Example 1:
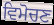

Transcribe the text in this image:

ਵਿਮੋਚਣ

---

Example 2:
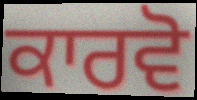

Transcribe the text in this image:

ਕਾਰਵੋ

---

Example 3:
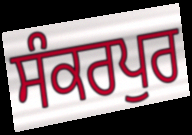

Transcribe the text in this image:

ਸੰਕਰਪੁਰ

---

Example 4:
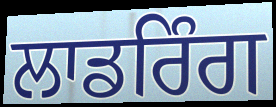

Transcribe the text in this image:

ਲਾਡਰਿੰਗ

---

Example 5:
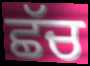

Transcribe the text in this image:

ਛੱਚ